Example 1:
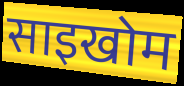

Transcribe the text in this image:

साइखोम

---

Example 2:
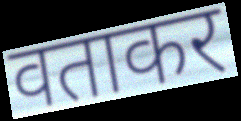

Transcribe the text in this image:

वताकर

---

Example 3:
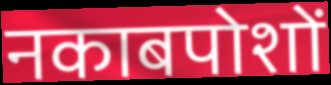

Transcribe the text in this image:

नकाबपोशों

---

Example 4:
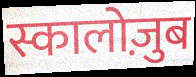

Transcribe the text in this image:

स्कालोज़ुब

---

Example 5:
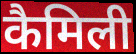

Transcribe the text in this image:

कैमिली